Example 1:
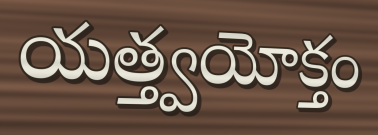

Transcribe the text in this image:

యత్త్వయోక్తం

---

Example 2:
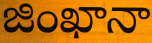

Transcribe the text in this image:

జింఖానా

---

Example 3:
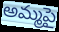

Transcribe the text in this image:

అమ్మపై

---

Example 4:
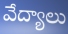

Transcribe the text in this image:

వేద్యాలు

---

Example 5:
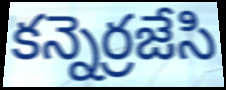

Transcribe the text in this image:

కన్నెర్రజేసి